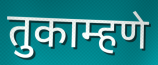
तुकाम्हणे